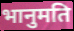
भानुमति